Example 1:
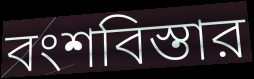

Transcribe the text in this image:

বংশবিস্তার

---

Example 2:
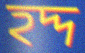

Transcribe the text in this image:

হদ্দ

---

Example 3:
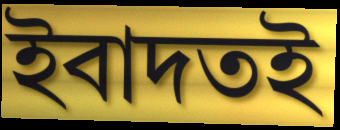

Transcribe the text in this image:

ইবাদতই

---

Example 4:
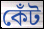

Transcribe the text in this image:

কেঁট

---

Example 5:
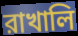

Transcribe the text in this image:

রাখালি